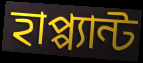
হাপ্প্যান্ট